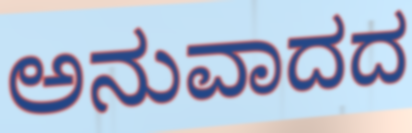
ಅನುವಾದದ